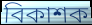
বিকাশক